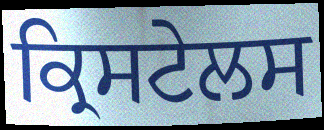
ਕ੍ਰਿਸਟੇਲਸ